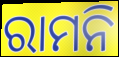
ରାମନି